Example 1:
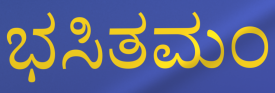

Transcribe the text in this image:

ಭಸಿತಮಂ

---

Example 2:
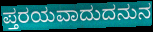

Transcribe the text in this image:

ಪ್ತರಯವಾದುದನುನ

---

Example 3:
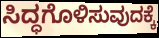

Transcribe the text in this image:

ಸಿದ್ಧಗೊಳಿಸುವುದಕ್ಕೆ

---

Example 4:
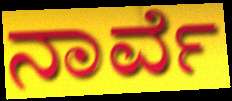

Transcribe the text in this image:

ನಾರ್ವೆ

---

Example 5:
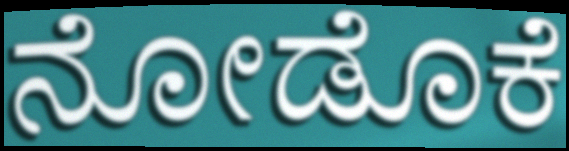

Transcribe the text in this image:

ನೋಡೊಕೆ